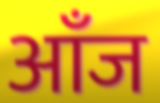
आँज